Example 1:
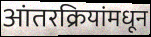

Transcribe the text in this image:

आंतरक्रियांमधून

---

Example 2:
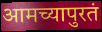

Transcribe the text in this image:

आमच्यापुरतं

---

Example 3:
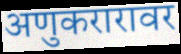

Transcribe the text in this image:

अणुकरारावर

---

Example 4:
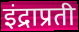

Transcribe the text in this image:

इंद्राप्रती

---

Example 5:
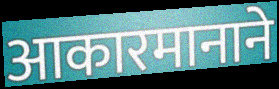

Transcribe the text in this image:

आकारमानाने